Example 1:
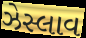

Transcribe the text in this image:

ઝેસ્લાવ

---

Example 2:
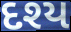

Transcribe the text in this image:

દશ્ય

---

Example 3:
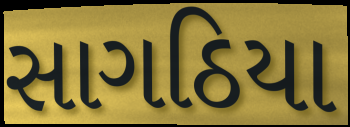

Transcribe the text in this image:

સાગઠિયા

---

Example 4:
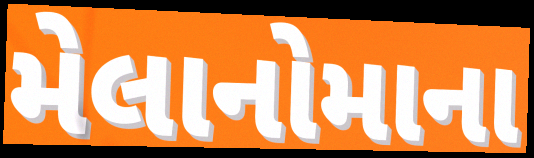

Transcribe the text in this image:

મેલાનોમાના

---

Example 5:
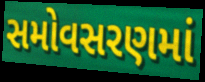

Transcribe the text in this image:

સમોવસરણમાં